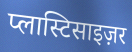
प्लास्टिसाइज़र